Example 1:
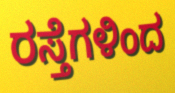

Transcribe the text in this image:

ರಸ್ತೆಗಳಿಂದ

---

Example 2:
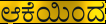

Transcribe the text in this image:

ಆಕೆಯಿಂದ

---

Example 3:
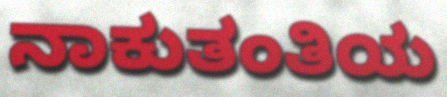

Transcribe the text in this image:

ನಾಕುತಂತಿಯ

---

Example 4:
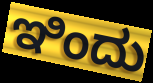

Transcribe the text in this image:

ಇಿಂದು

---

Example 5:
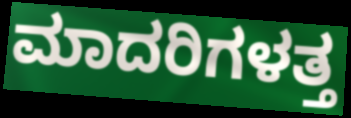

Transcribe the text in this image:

ಮಾದರಿಗಳತ್ತ